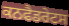
ਕਨਫੈਡਰੇਟਸ